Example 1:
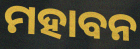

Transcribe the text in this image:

ମହାବନ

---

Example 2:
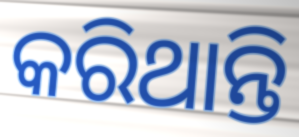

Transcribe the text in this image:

କରିଥାନ୍ତି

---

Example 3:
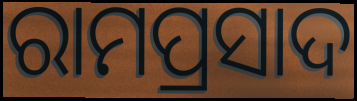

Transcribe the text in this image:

ରାମପ୍ରସାଦ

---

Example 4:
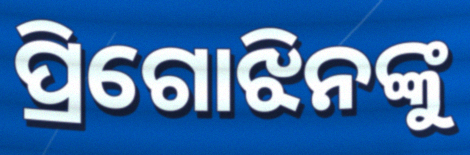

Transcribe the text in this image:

ପ୍ରିଗୋଝିନଙ୍କୁ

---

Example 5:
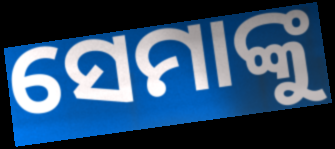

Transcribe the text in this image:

ସେମାଙ୍କୁ